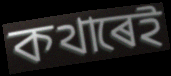
কথাৰেই